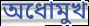
অধোমুখ